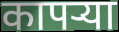
कापर्‍या